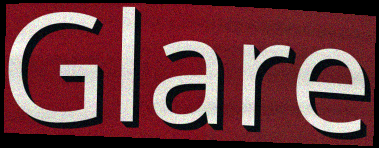
Glare